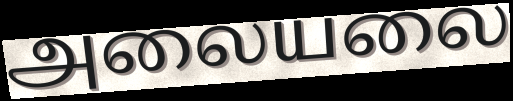
அலையலை